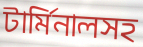
টার্মিনালসহ